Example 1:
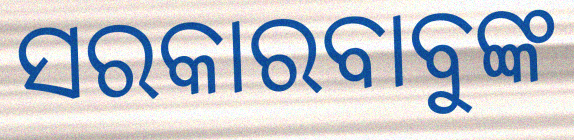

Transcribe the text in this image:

ସରକାରବାବୁଙ୍କ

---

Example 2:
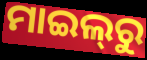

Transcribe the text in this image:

ମାଇଲ୍‌ରୁ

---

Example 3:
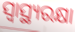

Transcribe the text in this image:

ସ୍ବାସ୍ଥ୍ୟରକ୍ଷା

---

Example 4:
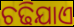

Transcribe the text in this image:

ଚଢିଯାଏ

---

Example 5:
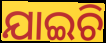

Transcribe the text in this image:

ଯାଇଚି